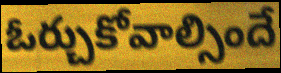
ఓర్చుకోవాల్సిందే